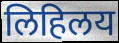
लिहिलय